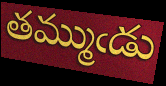
తమ్ముఁడు